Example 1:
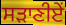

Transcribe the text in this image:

ਸੜਾਣੀਏਂ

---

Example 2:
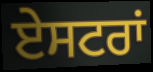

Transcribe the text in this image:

ਏਸਟਰਾਂ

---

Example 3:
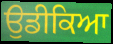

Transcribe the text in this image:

ਉਡੀਕਿਆ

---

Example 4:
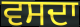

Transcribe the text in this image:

ਵਸਦਾ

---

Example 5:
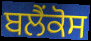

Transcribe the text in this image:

ਬਲੈਂਕੋਸ